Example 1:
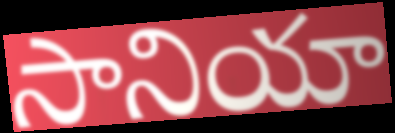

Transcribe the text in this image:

సానియా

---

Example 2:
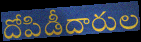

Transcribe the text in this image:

దోపిడీదారుల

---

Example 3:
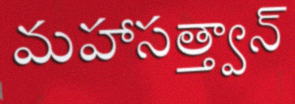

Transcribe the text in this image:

మహాసత్త్వాన్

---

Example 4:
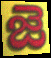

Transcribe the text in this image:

జె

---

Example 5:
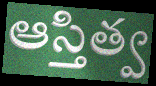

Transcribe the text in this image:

ఆస్తిత్వ